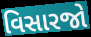
વિસારજો